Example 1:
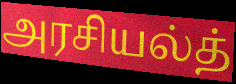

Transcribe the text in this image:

அரசியல்த்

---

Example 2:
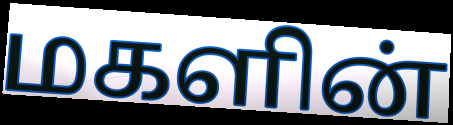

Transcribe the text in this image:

மகளின்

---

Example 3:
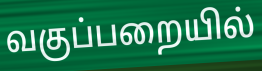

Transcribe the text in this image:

வகுப்பறையில்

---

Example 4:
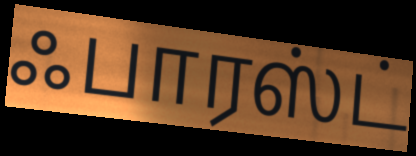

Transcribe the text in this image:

ஃபாரஸ்ட்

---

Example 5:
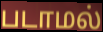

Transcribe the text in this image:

படாமல்